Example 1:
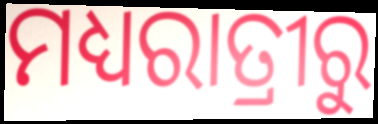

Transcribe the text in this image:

ମଧ୍ୟରାତ୍ରୀରୁ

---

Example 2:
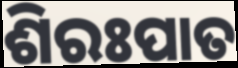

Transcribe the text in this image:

ଶିରଃପାତ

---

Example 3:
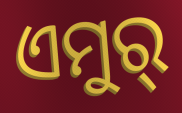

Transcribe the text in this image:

ଏମୁର୍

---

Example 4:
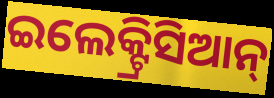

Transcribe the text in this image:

ଇଲେକ୍ଟ୍ରିସିଆନ୍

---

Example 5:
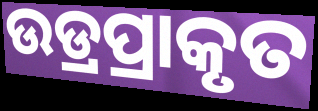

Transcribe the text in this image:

ଉଡ୍ରପ୍ରାକୃତ